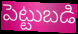
పెట్టుబడి